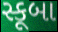
સ્કૂબા